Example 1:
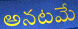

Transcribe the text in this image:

అనటమే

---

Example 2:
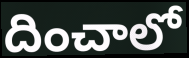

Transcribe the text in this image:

దించాలో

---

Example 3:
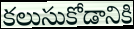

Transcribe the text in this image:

కలుసుకోడానికి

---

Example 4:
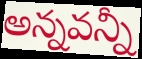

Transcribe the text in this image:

అన్నవన్నీ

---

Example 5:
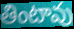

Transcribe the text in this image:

తింటావు